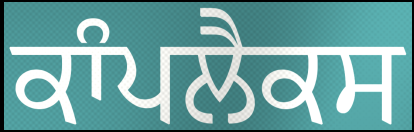
ਕਾੰਪਲੈਕਸ